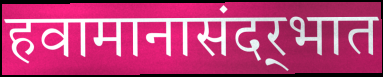
हवामानासंदर्भात